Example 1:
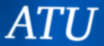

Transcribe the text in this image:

ATU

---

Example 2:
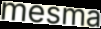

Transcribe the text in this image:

mesma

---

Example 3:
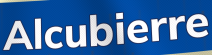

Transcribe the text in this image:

Alcubierre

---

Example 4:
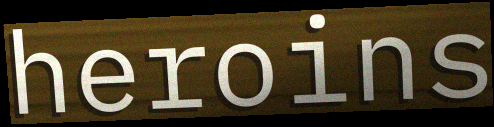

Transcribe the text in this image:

heroins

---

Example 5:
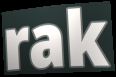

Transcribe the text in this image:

rak